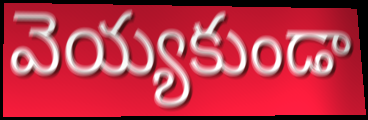
వెయ్యకుండా